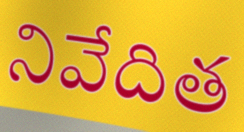
నివేదిత